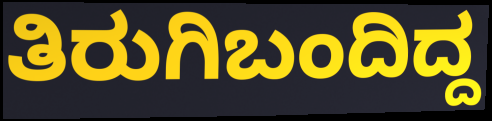
ತಿರುಗಿಬಂದಿದ್ದ